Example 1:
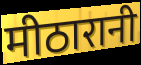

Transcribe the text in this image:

मीठारानी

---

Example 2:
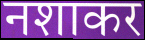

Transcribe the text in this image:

नशाकर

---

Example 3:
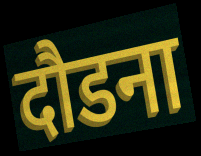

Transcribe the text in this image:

दौडना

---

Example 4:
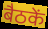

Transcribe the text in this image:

बैठकें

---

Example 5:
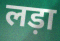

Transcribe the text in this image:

लड़ा